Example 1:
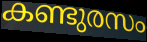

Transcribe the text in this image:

കണ്ടുരസം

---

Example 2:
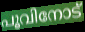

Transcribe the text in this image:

പൂവിനോട്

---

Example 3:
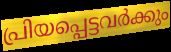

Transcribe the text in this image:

പ്രിയപ്പെട്ടവർക്കും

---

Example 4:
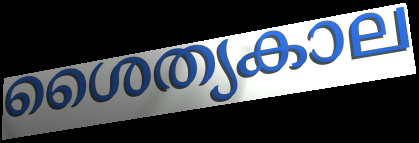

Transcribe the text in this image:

ശൈത്യകാല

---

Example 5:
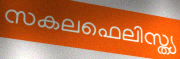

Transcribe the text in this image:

സകലഫെലിസ്ത്യ